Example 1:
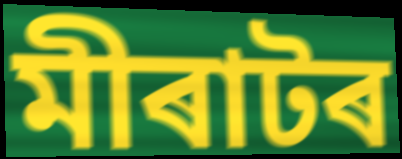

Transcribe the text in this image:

মীৰাটৰ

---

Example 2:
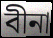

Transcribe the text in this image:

বীনা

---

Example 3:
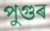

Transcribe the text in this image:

পুগুৰ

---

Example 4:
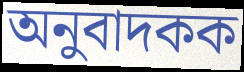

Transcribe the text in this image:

অনুবাদকক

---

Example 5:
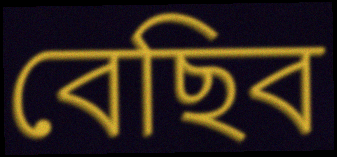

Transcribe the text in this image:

বেছিব